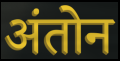
अंतोन